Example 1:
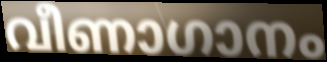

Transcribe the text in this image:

വീണാഗാനം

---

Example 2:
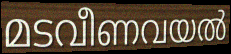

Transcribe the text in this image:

മടവീണവയൽ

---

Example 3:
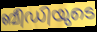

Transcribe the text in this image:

ബീഡിയുടെ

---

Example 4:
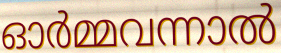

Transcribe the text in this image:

ഓർമ്മവന്നാൽ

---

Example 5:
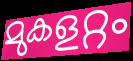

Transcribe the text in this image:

മുകളറ്റം